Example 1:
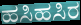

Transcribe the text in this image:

ಹಸಿಹಸಿರ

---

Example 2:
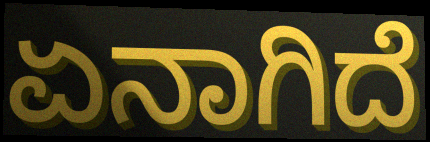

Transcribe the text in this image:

ಏನಾಗಿದೆ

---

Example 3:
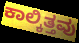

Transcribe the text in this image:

ಕಾಲ್ಕಿತ್ತವು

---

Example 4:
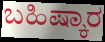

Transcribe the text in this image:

ಬಹಿಷ್ಕಾರ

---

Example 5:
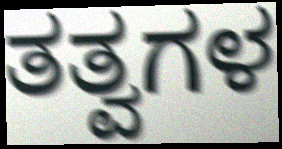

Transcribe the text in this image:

ತತ್ವಗಳ